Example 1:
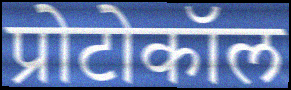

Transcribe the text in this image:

प्रोटोकॉल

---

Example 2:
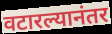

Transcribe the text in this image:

वटारल्यानंतर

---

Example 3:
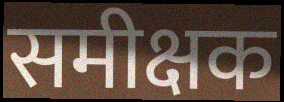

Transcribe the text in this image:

समीक्षक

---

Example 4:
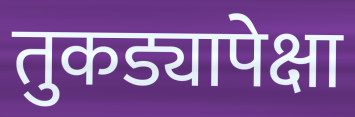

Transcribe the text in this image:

तुकड्यापेक्षा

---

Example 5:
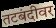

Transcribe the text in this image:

तटबंदीवर